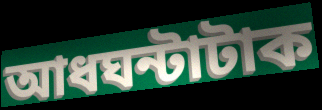
আধঘন্টাটাক